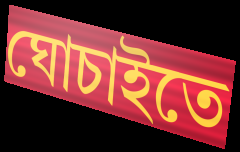
ঘোচাইতে